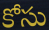
కోసు